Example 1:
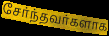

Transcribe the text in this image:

சேர்ந்தவர்களாக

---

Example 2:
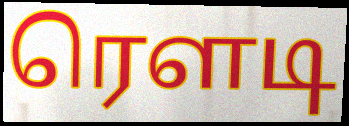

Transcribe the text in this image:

ரௌடி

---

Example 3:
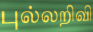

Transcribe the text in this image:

புல்லறிவி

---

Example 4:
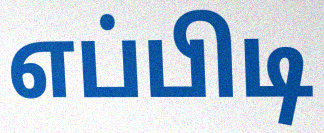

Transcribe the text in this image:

எப்பிடி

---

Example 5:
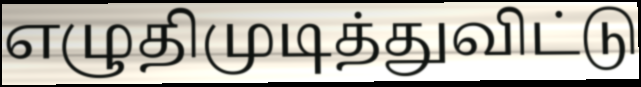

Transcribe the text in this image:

எழுதிமுடித்துவிட்டு